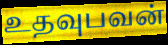
உதவுபவன்